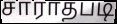
சாராதபடி